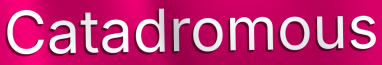
Catadromous